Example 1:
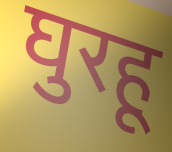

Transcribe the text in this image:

घुरहू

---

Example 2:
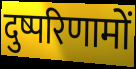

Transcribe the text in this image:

दुष्परिणामों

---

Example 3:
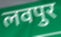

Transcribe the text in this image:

लवपुर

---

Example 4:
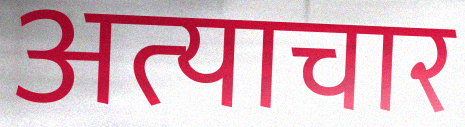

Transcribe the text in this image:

अत्‍याचार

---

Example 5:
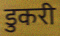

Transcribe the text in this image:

डुकरी